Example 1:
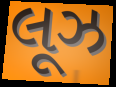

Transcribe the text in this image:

લૂઝ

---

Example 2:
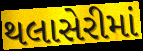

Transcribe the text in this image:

થલાસેરીમાં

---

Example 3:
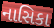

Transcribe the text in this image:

નાસિકા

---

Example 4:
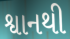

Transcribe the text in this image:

શ્વાનથી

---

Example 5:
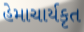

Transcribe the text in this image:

હેમાચાર્યકૃત